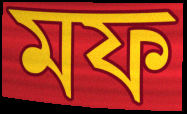
মফ